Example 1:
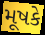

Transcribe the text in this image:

મૂષકે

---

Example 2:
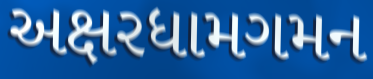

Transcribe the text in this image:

અક્ષરધામગમન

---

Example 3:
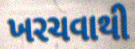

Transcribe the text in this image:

ખરચવાથી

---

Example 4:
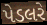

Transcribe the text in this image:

પેડલરે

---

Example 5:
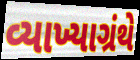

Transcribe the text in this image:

વ્યાખ્યાગ્રંથે